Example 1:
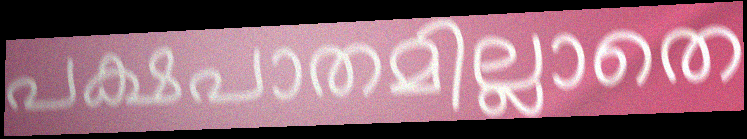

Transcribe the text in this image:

പക്ഷപാതമില്ലാതെ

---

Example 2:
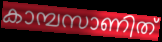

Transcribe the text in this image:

കാമ്പസാണിത്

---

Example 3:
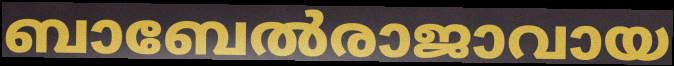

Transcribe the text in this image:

ബാബേൽരാജാവായ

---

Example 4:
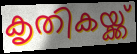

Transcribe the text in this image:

കൃതികയ്ക്ക്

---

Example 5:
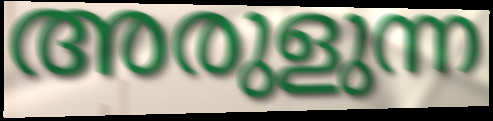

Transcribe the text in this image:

അരുളുന്ന